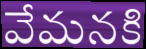
వేమనకి